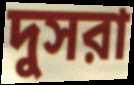
দুসরা